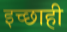
इच्छाही